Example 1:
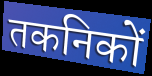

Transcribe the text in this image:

तकनिकों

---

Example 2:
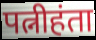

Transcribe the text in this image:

पत्नीहंता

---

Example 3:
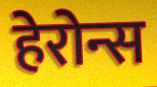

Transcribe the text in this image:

हेरोन्स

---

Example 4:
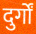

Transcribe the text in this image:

दुर्गों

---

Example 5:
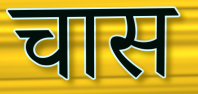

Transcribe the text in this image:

चास